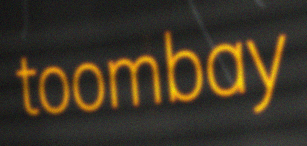
toombay